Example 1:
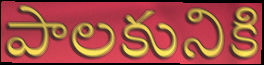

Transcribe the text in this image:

పాలకునికి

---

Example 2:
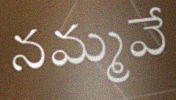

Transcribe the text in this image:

నమ్మవే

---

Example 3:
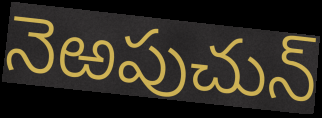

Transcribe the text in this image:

నెఱపుచున్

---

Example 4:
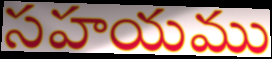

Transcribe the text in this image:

సహయము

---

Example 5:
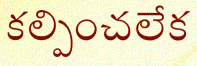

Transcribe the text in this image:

కల్పించలేక